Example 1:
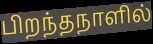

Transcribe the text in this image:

பிறந்தநாளில்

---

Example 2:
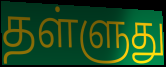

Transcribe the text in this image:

தள்ளுது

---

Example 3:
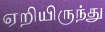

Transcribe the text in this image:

ஏறியிருந்து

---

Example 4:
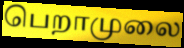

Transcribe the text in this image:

பெறாமுலை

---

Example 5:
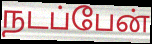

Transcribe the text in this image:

நடப்பேன்